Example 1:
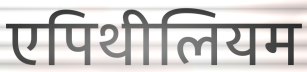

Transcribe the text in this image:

एपिथीलियम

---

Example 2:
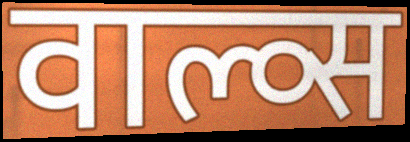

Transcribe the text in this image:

वाल्व्स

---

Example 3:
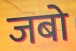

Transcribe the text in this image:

जबो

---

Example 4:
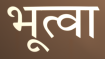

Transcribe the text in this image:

भूत्वा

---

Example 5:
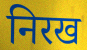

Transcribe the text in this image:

निरख